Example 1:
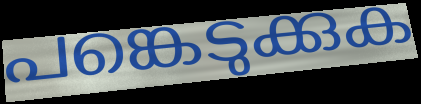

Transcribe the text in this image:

പങ്കെടുക്കുക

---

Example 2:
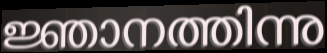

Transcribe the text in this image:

ജ്ഞാനത്തിന്നു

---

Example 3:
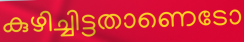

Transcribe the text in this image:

കുഴിച്ചിട്ടതാണെടോ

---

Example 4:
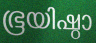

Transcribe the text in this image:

ഭൂയിഷ്ഠാ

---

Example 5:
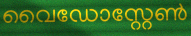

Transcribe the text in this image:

വൈഡോസ്റ്റേൺ